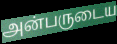
அன்பருடைய